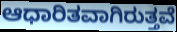
ಆಧಾರಿತವಾಗಿರುತ್ತವೆ